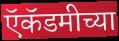
ऍकॅडमीच्या